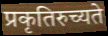
प्रकृतिरुच्यते